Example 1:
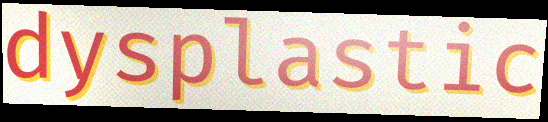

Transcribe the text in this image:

dysplastic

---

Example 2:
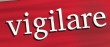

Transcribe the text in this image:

vigilare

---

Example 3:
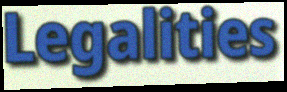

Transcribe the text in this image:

Legalities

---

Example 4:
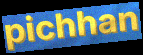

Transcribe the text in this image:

pichhan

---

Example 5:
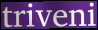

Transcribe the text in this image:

triveni